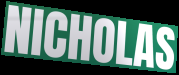
NICHOLAS